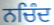
ਨਚਿੰਦ